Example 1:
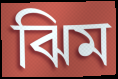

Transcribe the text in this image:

ঝিম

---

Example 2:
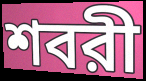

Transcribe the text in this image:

শবরী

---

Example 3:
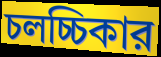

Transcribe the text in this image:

চলচ্চিকার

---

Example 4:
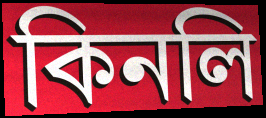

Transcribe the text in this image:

কিনলি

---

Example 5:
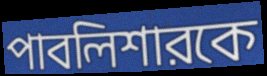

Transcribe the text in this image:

পাবলিশারকে